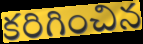
కరిగించిన